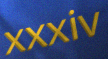
xxxiv